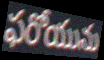
ఫరోయును